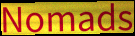
Nomads